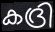
കദ്രി